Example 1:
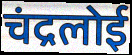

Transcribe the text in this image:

चंद्रलोई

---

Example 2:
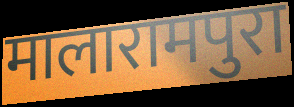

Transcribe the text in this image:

मालारामपुरा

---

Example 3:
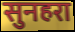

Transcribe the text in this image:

सुनहरा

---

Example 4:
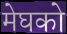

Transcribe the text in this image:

मेघको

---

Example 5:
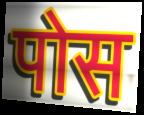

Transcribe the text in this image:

पोस